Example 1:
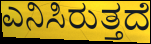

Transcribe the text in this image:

ಎನಿಸಿರುತ್ತದೆ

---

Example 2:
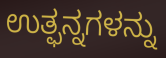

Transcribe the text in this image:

ಉತ್ಫನ್ನಗಳನ್ನು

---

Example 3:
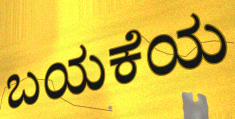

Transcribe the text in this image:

ಬಯಕೆಯ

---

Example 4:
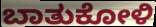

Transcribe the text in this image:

ಬಾತುಕೋಳಿ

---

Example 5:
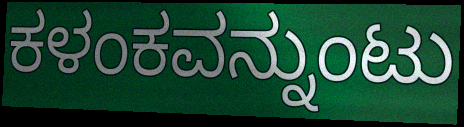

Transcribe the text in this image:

ಕಳಂಕವನ್ನುಂಟು